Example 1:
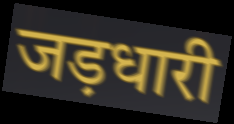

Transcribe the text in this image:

जड़धारी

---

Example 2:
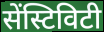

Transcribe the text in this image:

सेंस्टिविटी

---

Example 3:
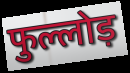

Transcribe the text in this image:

फुल्लोड़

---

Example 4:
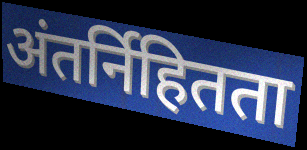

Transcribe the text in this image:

अंतर्निहितता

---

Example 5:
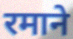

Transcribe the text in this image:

रमाने